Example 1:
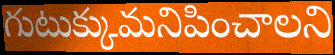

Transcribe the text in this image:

గుటుక్కుమనిపించాలని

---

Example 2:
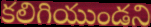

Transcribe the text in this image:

కలిగియుండని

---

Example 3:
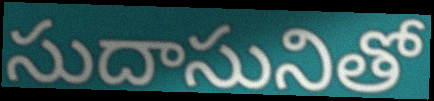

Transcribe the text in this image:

సుదాసునితో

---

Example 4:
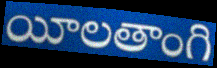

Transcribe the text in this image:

యీలతాంగి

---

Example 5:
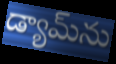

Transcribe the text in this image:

డ్యామ్‌ను